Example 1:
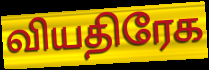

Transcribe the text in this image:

வியதிரேக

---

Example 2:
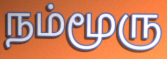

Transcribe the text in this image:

நம்மூரு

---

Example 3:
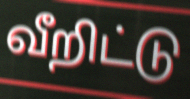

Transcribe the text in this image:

வீறிட்டு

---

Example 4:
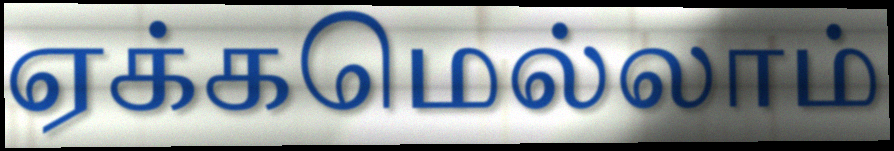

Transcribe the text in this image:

ஏக்கமெல்லாம்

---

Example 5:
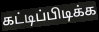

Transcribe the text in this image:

கட்டிப்பிடிக்க